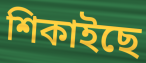
শিকাইছে